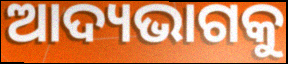
ଆଦ୍ୟଭାଗକୁ